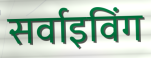
सर्वाइविंग